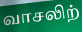
வாசலிற்